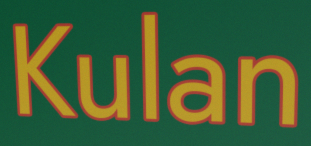
Kulan